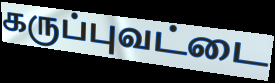
கருப்புவட்டை